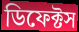
ডিফেক্টস